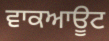
ਵਾਕਆਊਟ